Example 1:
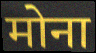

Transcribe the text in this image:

मोना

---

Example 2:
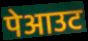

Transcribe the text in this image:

पेआउट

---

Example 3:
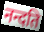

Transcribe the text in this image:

नन्दति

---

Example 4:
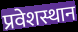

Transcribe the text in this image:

प्रवेशस्थान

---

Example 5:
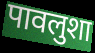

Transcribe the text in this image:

पावलुशा